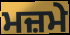
ਮਜ਼ਮੇ